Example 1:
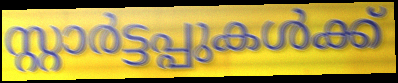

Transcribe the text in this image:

സ്റ്റാർട്ടപ്പുകൾക്ക്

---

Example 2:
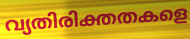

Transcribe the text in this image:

വ്യതിരിക്തതകളെ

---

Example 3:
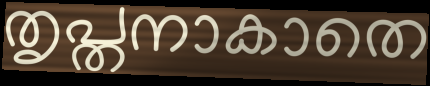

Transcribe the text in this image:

തൃപ്തനാകാതെ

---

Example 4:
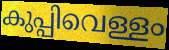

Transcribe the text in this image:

കുപ്പിവെള്ളം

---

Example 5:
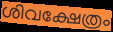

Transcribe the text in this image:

ശിവക്ഷേത്രം